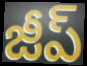
జీప్